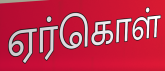
ஏர்கொள்